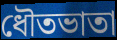
ধৌতভাতা